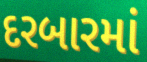
દરબારમાં